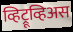
व्हिट्रूव्हिअस